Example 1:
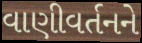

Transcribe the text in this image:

વાણીવર્તનને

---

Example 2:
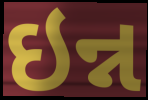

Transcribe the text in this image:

ઇન્ન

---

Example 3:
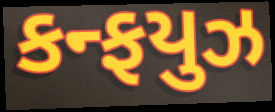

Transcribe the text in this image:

કન્ફયુઝ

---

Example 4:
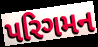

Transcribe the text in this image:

પરિગમન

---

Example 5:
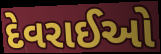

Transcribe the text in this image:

દેવરાઈઓ